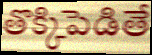
తొక్కిపెడితే